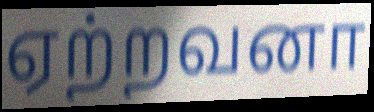
ஏற்றவனா